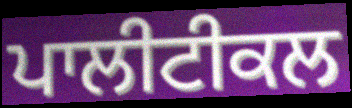
ਪਾਲੀਟੀਕਲ